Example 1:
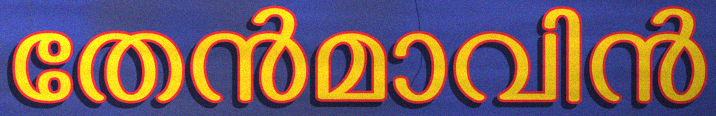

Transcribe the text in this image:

തേൻമാവിൻ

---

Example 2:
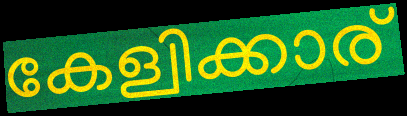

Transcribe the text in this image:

കേള്വിക്കാര്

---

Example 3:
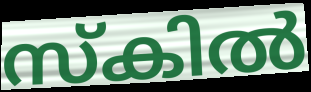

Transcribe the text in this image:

സ്കിൽ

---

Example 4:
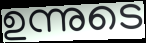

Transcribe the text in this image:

ഉന്നുടെ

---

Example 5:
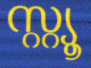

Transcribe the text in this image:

സ്റ്റ്യൂ